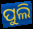
ପୁଲି